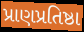
પ્રાણપ્રતિષ્ઠા